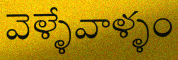
వెళ్ళేవాళ్ళం